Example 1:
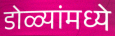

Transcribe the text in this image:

डोळ्यांमध्ये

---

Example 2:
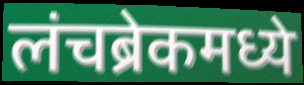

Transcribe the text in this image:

लंचब्रेकमध्ये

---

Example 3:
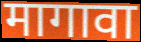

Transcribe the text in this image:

मागावा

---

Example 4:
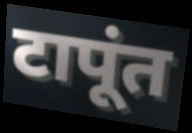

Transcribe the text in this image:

टापूंत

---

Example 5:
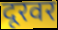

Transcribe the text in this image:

दूरवर